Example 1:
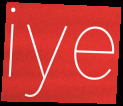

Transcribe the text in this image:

iye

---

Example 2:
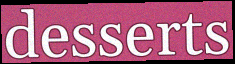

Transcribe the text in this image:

desserts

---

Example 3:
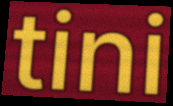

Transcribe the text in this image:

tini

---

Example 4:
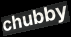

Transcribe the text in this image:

chubby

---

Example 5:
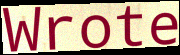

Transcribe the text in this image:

Wrote